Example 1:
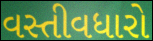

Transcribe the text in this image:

વસ્તીવધારો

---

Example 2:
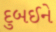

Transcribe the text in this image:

દુબઈને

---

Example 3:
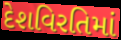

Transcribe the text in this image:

દેશવિરતિમાં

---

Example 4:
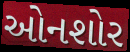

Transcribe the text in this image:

ઓનશોર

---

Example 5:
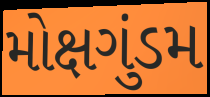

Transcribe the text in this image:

મોક્ષગુંડમ